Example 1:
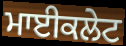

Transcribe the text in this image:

ਮਾਈਕਲੇਟ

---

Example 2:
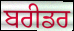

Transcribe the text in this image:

ਬਰੀਡਰ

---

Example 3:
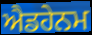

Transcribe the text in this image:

ਐਡਹੇਨਮ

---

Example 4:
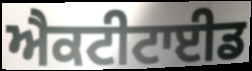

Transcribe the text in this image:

ਐਕਟੀਟਾਈਡ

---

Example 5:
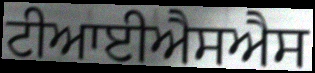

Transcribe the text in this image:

ਟੀਆਈਐਸਐਸ